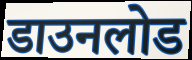
डाउनलोड